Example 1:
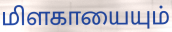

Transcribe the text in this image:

மிளகாயையும்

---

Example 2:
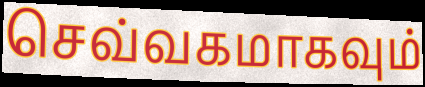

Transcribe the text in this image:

செவ்வகமாகவும்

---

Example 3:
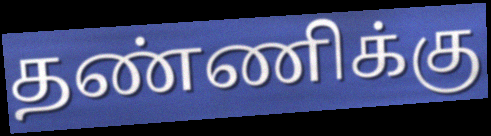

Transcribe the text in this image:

தண்ணிக்கு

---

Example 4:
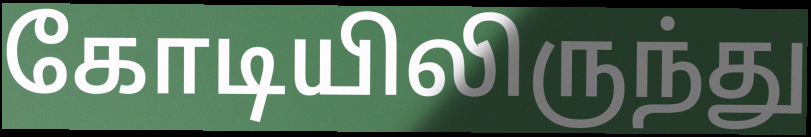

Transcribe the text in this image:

கோடியிலிருந்து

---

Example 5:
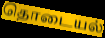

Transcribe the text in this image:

தொடையல்